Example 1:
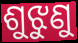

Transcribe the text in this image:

ଶୁଝୁଣୁ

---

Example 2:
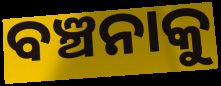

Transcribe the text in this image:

ବଞ୍ଚନାକୁ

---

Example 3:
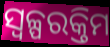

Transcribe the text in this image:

ସ୍ୱଳ୍ପରକ୍ତିମ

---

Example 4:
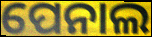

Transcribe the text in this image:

ପେନାଲ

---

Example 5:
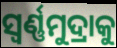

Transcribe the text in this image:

ସ୍ଵର୍ଣ୍ଣମୁଦ୍ରାକୁ